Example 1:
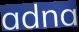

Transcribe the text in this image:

adna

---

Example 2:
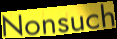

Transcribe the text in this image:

Nonsuch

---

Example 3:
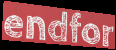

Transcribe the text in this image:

endfor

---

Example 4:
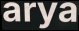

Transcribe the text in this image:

arya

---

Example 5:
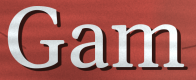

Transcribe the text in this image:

Gam